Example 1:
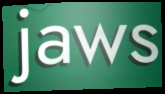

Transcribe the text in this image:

jaws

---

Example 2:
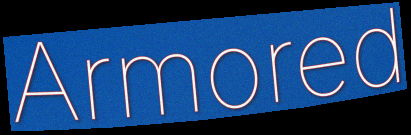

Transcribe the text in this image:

Armored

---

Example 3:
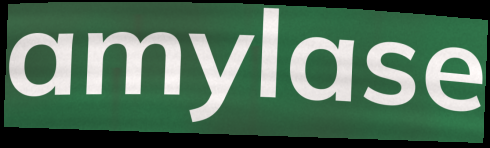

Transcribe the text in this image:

amylase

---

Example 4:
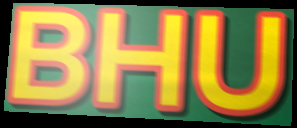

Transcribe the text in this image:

BHU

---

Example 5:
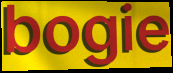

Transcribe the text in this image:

bogie